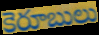
కెరూబులు